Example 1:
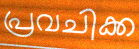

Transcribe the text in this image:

പ്രവചിക്ക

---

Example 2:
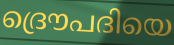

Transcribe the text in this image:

ദ്രൌപദിയെ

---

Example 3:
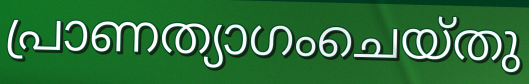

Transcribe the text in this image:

പ്രാണത്യാഗംചെയ്തു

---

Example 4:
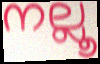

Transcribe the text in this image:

നല്ലൂ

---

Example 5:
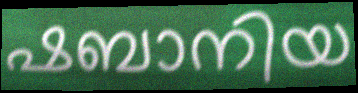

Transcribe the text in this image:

ഷബാനിയ